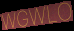
WGWLO